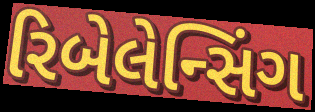
રિબેલેન્સિંગ